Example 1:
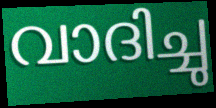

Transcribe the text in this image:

വാദിച്ചു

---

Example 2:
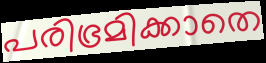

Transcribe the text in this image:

പരിഭ്രമിക്കാതെ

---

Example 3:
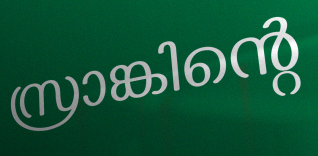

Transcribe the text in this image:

സ്രാങ്കിന്റെ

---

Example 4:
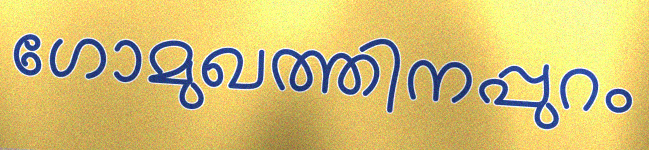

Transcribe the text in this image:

ഗോമുഖത്തിനപ്പുറം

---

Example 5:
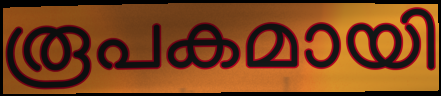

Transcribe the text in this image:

രൂപകമായി